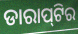
ଡାରାପ୍‌ଟିର